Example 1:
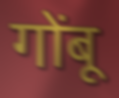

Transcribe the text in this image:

गोंबू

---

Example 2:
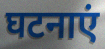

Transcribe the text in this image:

घटनाएं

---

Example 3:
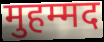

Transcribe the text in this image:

मुहम्मद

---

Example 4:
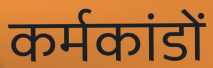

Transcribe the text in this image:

कर्मकांडों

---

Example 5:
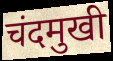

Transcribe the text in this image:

चंदमुखी